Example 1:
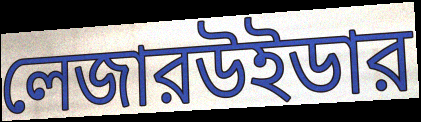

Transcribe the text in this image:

লেজারউইডার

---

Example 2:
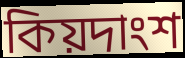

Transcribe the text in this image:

কিয়দাংশ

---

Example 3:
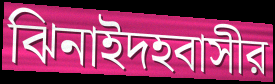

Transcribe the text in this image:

ঝিনাইদহবাসীর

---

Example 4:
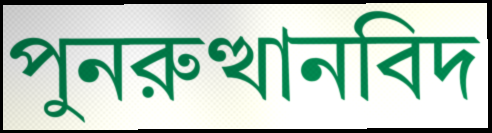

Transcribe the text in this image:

পুনরুত্থানবিদ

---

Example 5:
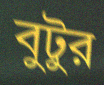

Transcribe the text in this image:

বুটুর